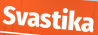
Svastika